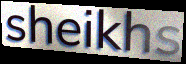
sheikhs